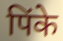
पिंके